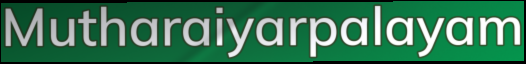
Mutharaiyarpalayam